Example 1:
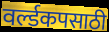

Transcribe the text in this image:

वर्ल्डकपसाठी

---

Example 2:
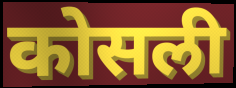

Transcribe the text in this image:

कोसली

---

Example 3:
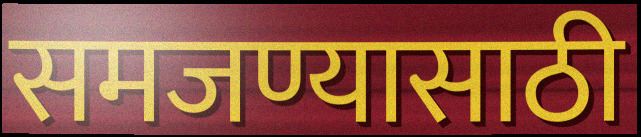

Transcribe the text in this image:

समजण्यासाठी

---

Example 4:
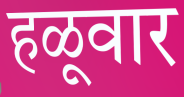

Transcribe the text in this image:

हळूवार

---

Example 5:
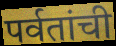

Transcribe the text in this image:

पर्वतांची